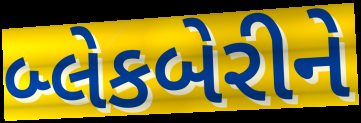
બ્લેકબેરીને